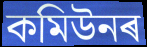
কমিউনৰ